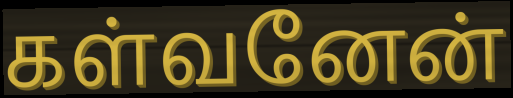
கள்வனேன்